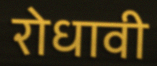
रोधावी